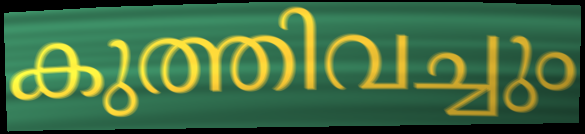
കുത്തിവച്ചും